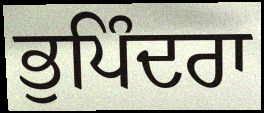
ਭੁਪਿੰਦਰਾ